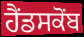
ਹੈਂਡਸਕੋਂਬ